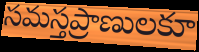
సమస్తప్రాణులకూ